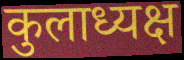
कुलाध्यक्ष